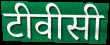
टीवीसी